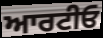
ਆਰਟੀਓ